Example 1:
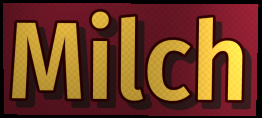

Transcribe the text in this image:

Milch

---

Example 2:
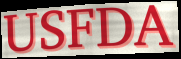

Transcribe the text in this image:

USFDA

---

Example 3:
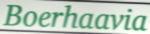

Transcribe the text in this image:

Boerhaavia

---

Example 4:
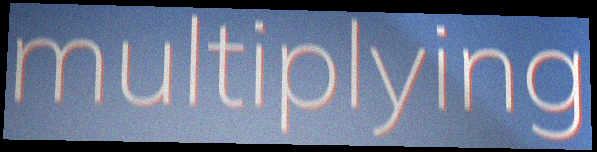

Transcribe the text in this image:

multiplying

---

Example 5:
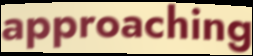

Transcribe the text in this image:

approaching